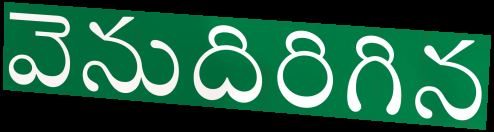
వెనుదిరిగిన